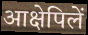
आक्षेपिलें